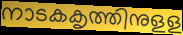
നാടകകൃത്തിനുളള